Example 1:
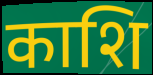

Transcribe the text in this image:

काशि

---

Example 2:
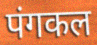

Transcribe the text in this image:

पंगकल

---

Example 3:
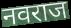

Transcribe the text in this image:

नवराज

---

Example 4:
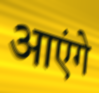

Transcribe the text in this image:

आएंगे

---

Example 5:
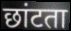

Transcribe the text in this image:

छांटता